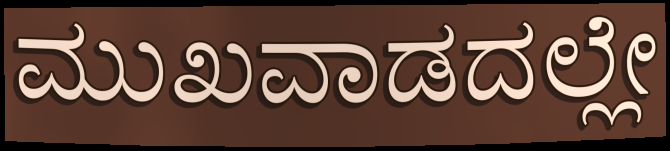
ಮುಖವಾಡದಲ್ಲೇ